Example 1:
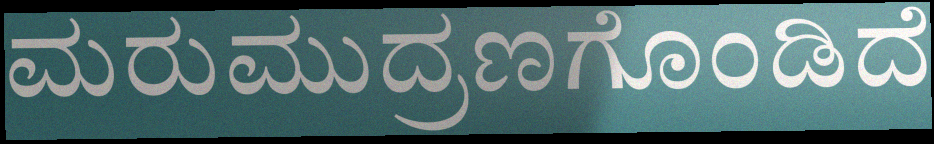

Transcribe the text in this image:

ಮರುಮುದ್ರಣಗೊಂಡಿದೆ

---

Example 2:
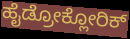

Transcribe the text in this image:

ಹೈಡ್ರೋಕ್ಲೋರಿಕ್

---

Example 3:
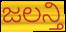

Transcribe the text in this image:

ಜಲನ್ತಿ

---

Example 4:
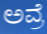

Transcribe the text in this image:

ಅವ್ರೆ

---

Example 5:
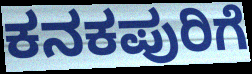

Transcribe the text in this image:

ಕನಕಪುರಿಗೆ